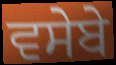
ਵਸੇਬੇ